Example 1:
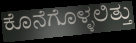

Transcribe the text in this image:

ಕೊನೆಗೊಳ್ಳಲಿತ್ತು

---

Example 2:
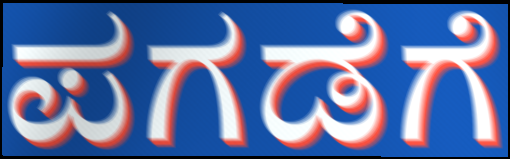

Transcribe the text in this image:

ಪಗಡೆಗೆ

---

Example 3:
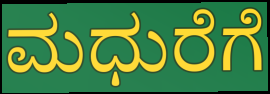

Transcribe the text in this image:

ಮಧುರೆಗೆ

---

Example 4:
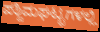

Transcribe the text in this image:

ಪಶ್ಚಿಮಘಟ್ಟಗಳಲ್ಲಿ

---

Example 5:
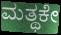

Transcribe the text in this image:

ಮತ್ಥಕೇ